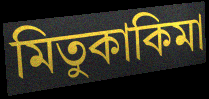
মিতুকাকিমা